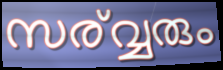
സര്വ്വരും